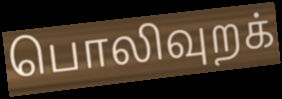
பொலிவுறக்